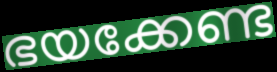
ഭയക്കേണ്ട